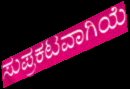
ಸುಪ್ರಕಟವಾಗಿಯೆ